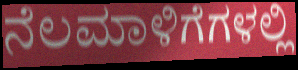
ನೆಲಮಾಳಿಗೆಗಳಲ್ಲಿ